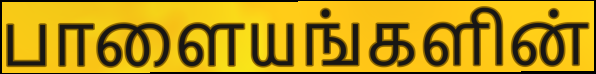
பாளையங்களின்